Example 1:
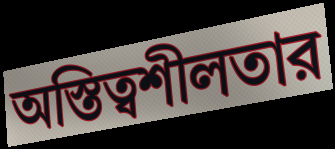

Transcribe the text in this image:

অস্তিত্বশীলতার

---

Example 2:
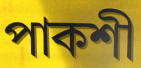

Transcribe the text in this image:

পাকশী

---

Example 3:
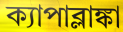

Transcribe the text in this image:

ক্যাপাব্লাঙ্কা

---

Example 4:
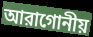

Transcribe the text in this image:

আরাগোনীয়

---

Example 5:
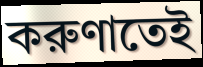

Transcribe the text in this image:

করুণাতেই